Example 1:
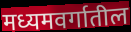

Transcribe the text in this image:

मध्यमवर्गातील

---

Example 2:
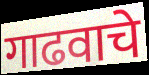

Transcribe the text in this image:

गाढवाचे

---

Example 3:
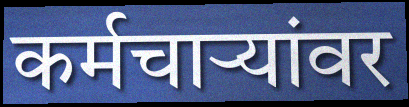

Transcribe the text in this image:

कर्मचार्‍यांवर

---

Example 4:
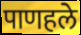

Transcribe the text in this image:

पाणहले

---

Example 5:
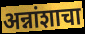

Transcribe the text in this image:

अन्नांशाचा